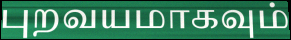
புறவயமாகவும்